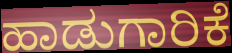
ಹಾಡುಗಾರಿಕೆ